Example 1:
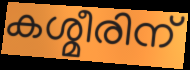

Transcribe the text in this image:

കശ്മീരിന്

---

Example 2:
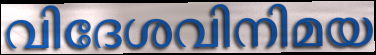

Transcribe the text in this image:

വിദേശവിനിമയ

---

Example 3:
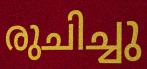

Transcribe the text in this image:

രുചിച്ചു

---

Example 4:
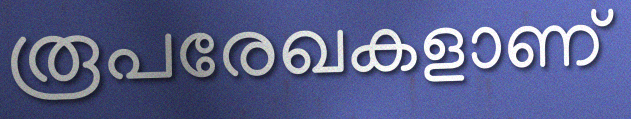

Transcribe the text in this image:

രൂപരേഖകളാണ്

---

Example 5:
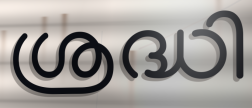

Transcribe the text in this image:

ശ്രദ്ധി